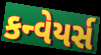
કન્વેયર્સ